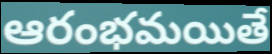
ఆరంభమయితే